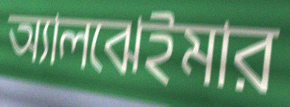
অ্যালঝেইমার